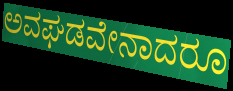
ಅವಘಡವೇನಾದರೂ